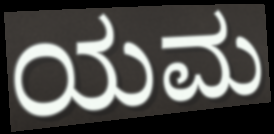
ಯಮ